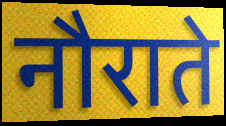
नौराते